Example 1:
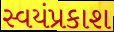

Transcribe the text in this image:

સ્વયંપ્રકાશ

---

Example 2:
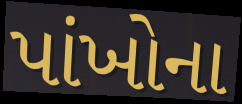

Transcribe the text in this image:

પાંખોના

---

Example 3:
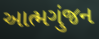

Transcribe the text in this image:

આત્મગુંજન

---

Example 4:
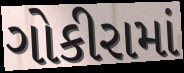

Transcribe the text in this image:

ગોકીરામાં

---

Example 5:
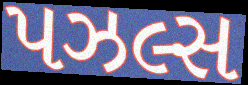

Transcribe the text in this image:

પઝલ્સ